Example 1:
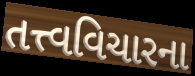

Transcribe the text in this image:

તત્ત્વવિચારના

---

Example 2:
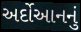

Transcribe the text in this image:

અર્દોઆનનું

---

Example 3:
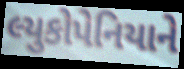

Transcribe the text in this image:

લ્યુકોપેનિયાને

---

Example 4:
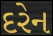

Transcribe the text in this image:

દરેન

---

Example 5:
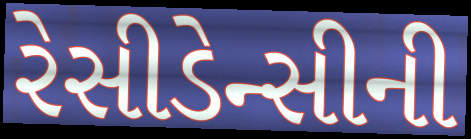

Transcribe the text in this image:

રેસીડેન્સીની